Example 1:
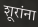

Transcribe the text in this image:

शूरांना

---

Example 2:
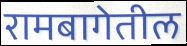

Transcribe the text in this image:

रामबागेतील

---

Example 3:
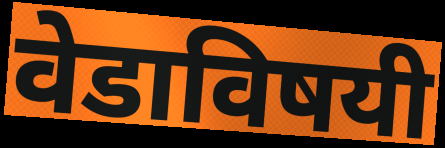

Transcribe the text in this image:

वेडाविषयी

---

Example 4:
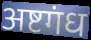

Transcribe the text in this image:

अष्टगंध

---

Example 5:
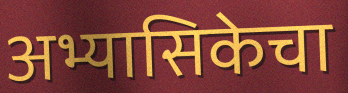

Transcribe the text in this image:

अभ्यासिकेचा